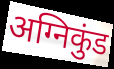
अग्निकुंड